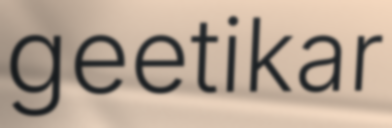
geetikar